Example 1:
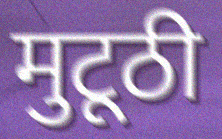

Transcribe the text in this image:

मुटूठी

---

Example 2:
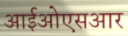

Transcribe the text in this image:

आईओएसआर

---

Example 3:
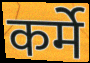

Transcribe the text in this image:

कर्मे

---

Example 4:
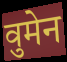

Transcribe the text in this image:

वुमेन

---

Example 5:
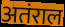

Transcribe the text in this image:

अतंराल